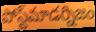
పోస్ట్‌మాడర్నిజం